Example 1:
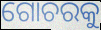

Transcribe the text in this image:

ଗୋଚରକୁ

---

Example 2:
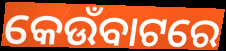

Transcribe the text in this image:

କେଉଁବାଟରେ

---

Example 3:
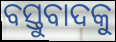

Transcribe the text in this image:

ବସ୍ତୁବାଦକୁ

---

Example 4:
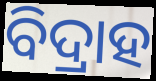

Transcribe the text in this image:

ବିଦ୍ରାହ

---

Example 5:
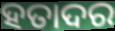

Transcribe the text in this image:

ହତାଦର